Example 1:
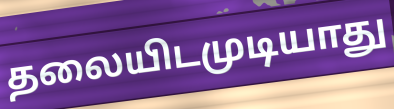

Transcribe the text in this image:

தலையிடமுடியாது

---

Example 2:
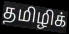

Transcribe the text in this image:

தமிழிக்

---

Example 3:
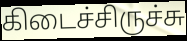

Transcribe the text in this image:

கிடைச்சிருச்சு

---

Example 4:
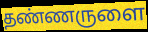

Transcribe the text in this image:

தண்ணருளை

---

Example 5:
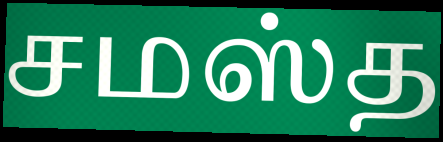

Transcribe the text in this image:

சமஸ்த